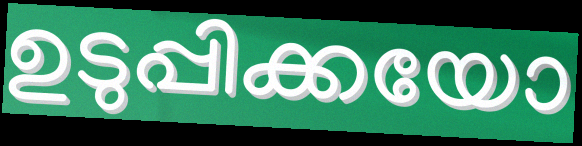
ഉടുപ്പിക്കയോ